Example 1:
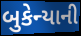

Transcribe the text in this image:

બુકેન્યાની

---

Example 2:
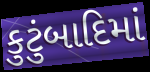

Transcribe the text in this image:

કુટુંબાદિમાં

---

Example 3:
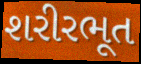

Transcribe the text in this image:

શરીરભૂત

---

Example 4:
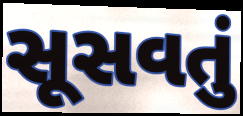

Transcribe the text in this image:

સૂસવતું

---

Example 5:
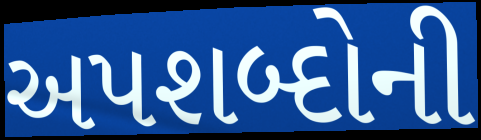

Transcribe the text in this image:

અપશબ્દોની